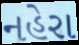
નહેરા